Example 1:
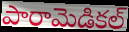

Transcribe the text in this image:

పారామెడికల్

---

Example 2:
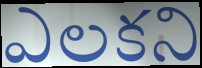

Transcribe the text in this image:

ఎలకని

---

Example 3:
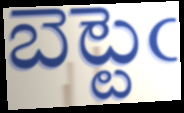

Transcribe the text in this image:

బెట్టెఁ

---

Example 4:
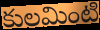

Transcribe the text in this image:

కులమింటి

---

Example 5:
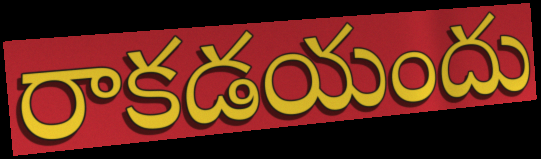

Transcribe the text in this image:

రాకడయందు